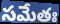
సమేతః